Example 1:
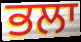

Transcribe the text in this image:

ਭਲਾ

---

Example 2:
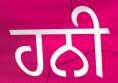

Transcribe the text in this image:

ਹਨੀ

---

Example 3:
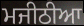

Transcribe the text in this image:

ਮਜੀਠੀਆ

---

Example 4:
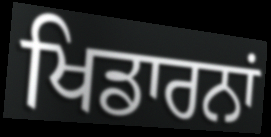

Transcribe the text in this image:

ਖਿਡਾਰਨਾਂ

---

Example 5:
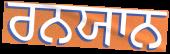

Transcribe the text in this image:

ਰਨਯਾਨ